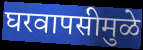
घरवापसीमुळे